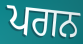
ਪਗਨ